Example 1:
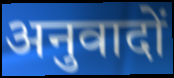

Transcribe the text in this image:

अनुवादों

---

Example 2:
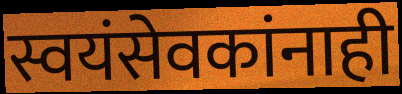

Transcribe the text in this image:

स्वयंसेवकांनाही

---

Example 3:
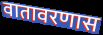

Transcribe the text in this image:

वातावरणास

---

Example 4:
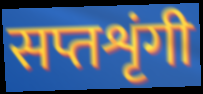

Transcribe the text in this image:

सप्तशृंगी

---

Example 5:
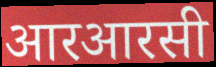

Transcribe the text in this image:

आरआरसी